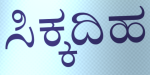
ಸಿಕ್ಕದಿಹ